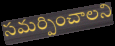
సమర్పించాలని